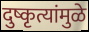
दुष्कृत्यांमुळे